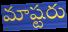
మాష్టరు